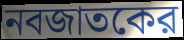
নবজাতকের